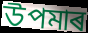
উপমাৰ